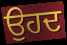
ਉਹਦ